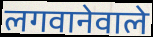
लगवानेवाले